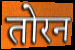
तोरन